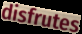
disfrutes